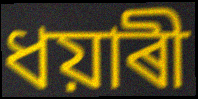
ধয়াৰী